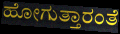
ಹೋಗುತ್ತಾರಂತೆ